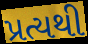
પ્રત્યથી